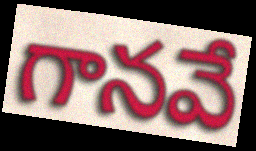
గానవే